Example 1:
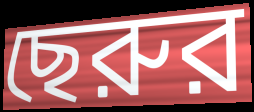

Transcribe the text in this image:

ছেরুর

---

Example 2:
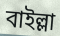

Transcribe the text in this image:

বাইল্লা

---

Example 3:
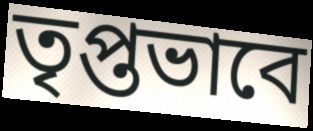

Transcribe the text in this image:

তৃপ্তভাবে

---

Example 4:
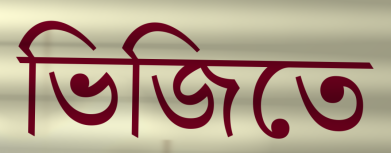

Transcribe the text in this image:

ভিজিতে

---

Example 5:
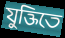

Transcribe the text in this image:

যুক্তিতে